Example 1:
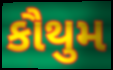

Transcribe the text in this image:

કૌથુમ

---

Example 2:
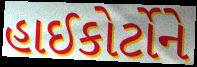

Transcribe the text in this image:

હાઈકોર્ટોને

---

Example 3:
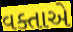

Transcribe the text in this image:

વક્તાએ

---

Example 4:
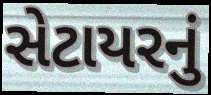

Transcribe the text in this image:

સેટાયરનું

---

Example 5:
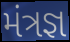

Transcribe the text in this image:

મંત્રજ્ઞ